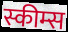
स्‍कीम्‍स